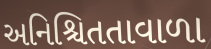
અનિશ્ચિતતાવાળા